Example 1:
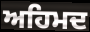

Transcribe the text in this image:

ਅਹਿਮਦ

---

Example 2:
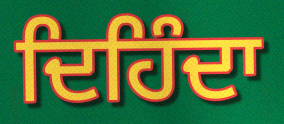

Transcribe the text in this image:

ਦਿਹਿੰਦਾ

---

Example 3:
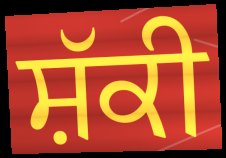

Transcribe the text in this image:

ਸ਼ੱਕੀ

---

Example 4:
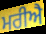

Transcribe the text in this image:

ਮਰੀਐ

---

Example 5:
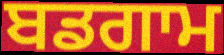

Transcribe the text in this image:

ਬਡਗਾਮ